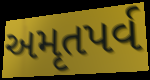
અમૃતપર્વ